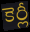
కెర్లీ